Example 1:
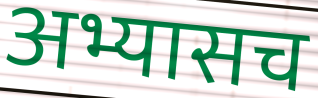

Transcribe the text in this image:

अभ्यासच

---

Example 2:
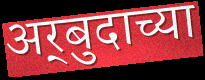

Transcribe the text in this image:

अर्बुदाच्या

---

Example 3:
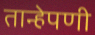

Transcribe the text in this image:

तान्हेपणी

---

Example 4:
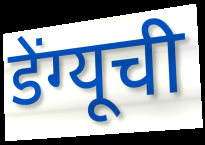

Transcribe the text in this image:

डेंग्यूची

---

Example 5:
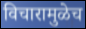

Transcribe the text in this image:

विचारामुळेच